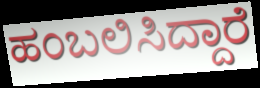
ಹಂಬಲಿಸಿದ್ದಾರೆ